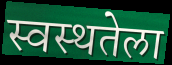
स्वस्थतेला